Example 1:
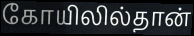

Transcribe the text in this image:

கோயிலில்தான்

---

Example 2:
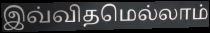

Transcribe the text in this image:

இவ்விதமெல்லாம்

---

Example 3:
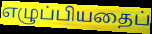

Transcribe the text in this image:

எழுப்பியதைப்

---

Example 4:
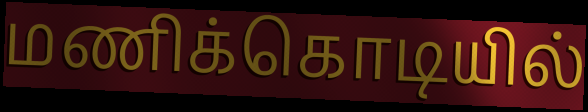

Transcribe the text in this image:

மணிக்கொடியில்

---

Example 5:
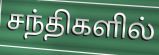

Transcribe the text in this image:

சந்திகளில்